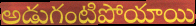
అడుగంటిపోయాయి